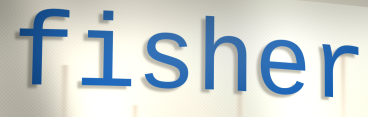
fisher